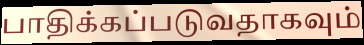
பாதிக்கப்படுவதாகவும்